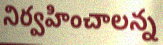
నిర్వహించాలన్న